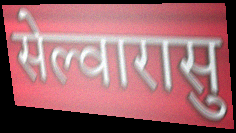
सेल्वारासु